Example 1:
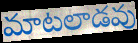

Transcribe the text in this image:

మాటలాడవు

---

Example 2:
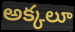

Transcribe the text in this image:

అక్కలూ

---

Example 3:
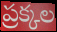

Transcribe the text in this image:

ప్రక్కల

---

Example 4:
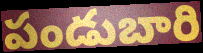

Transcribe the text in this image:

పండుబారి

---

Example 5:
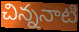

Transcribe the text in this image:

చిన్ననాటి